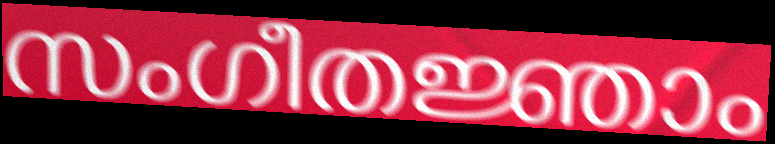
സംഗീതജ്ഞാം